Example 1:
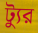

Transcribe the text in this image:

ট্যুর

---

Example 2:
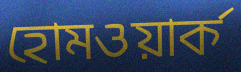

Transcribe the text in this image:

হোমওয়ার্ক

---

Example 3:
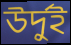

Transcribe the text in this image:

উর্দুই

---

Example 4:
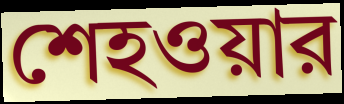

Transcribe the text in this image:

শেহওয়ার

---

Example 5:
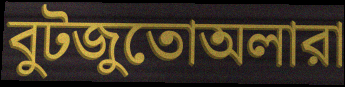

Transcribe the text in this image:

বুটজুতোঅলারা